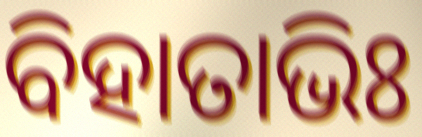
ବିହାତାଭିଃ